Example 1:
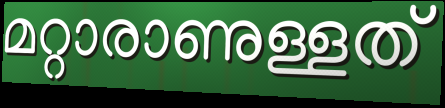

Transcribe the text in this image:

മറ്റാരാണുള്ളത്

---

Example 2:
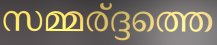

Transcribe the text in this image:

സമ്മര്ദ്ദത്തെ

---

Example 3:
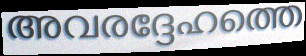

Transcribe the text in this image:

അവരദ്ദേഹത്തെ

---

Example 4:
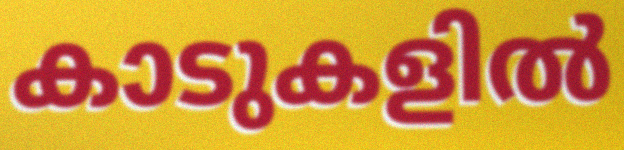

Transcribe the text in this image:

കാടുകളിൽ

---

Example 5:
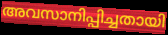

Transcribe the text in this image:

അവസാനിപ്പിച്ചതായി